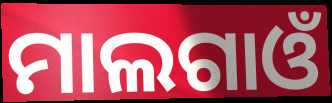
ମାଲଗାଓଁ